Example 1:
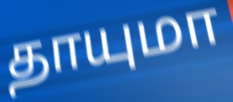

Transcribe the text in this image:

தாயுமா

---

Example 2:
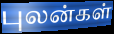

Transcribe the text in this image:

புலன்கள்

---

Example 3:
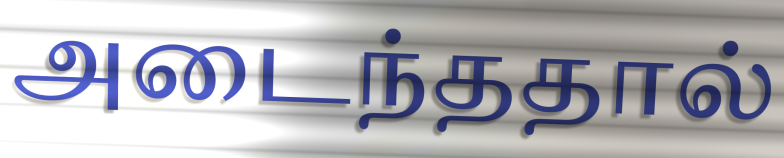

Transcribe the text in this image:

அடைந்ததால்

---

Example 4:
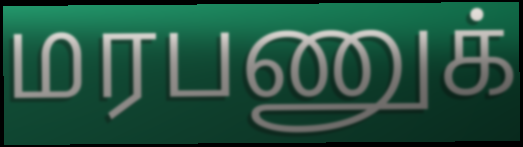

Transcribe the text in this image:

மரபணுக்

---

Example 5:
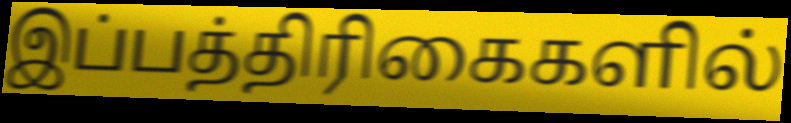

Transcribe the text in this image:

இப்பத்திரிகைகளில்